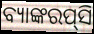
ବ୍ୟାଙ୍କରପ୍‌ସି